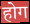
होग